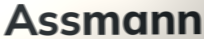
Assmann